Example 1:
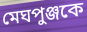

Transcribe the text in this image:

মেঘপুঞ্জকে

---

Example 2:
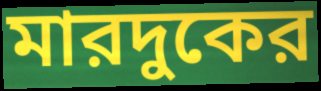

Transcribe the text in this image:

মারদুকের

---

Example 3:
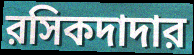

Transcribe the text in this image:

রসিকদাদার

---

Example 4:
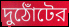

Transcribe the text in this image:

দুঠোঁটের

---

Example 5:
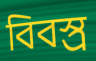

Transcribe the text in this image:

বিবস্ত্র